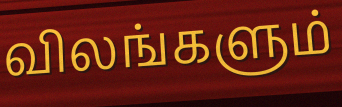
விலங்களும்